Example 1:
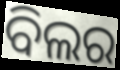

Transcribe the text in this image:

ବିଲର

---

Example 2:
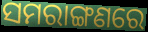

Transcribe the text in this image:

ସମରାଙ୍ଗଣରେ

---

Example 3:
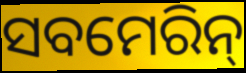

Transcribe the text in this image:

ସବମେରିନ୍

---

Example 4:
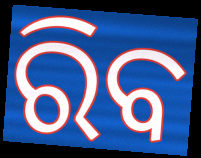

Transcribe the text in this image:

ରିବ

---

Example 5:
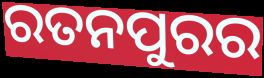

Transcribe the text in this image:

ରତନପୁରର